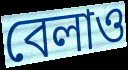
বেলাও